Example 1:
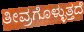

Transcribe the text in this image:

ತೀವ್ರಗೊಳ್ಳುತ್ತದೆ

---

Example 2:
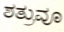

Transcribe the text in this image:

ಶತ್ರುವೂ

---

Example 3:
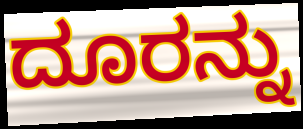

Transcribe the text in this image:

ದೂರನ್ನು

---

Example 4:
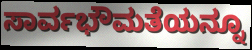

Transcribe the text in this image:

ಸಾರ್ವಭೌಮತೆಯನ್ನೂ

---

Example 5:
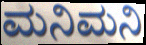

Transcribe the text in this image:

ಮನಿಮನಿ